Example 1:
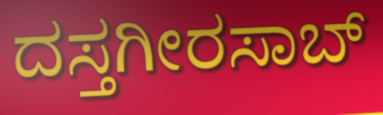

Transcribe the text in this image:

ದಸ್ತಗೀರಸಾಬ್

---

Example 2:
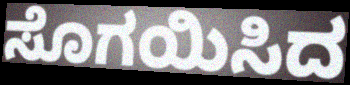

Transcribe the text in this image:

ಸೊಗಯಿಸಿದ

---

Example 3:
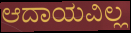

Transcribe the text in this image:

ಆದಾಯವಿಲ್ಲ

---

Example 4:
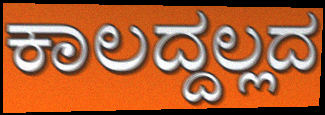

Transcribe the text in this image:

ಕಾಲದ್ದಲ್ಲದ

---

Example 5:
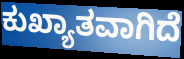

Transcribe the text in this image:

ಕುಖ್ಯಾತವಾಗಿದೆ